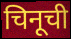
चिनूची